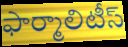
ఫార్మాలిటీస్